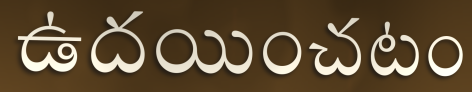
ఉదయించటం